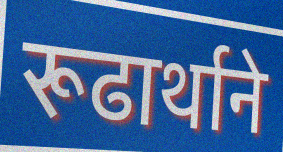
रूढार्थाने